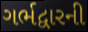
ગર્ભદ્વારની